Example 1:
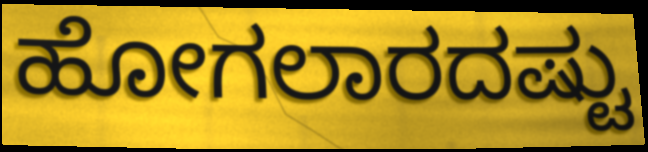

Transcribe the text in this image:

ಹೋಗಲಾರದಷ್ಟು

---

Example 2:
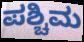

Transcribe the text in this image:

ಪಶ್ಚಿಮ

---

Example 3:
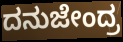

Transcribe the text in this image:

ದನುಜೇಂದ್ರ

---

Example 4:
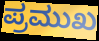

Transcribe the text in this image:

ಪ್ರಮುಖ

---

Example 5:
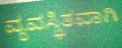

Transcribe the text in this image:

ವ್ಯವಸ್ಥಿತವಾಗಿ